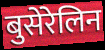
बुसेरेलिन